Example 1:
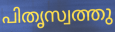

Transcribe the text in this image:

പിതൃസ്വത്തു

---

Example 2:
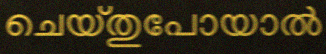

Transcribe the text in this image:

ചെയ്തുപോയാൽ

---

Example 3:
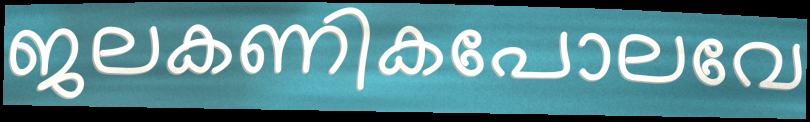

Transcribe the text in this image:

ജലകണികപോലവേ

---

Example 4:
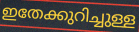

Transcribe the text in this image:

ഇതേക്കുറിച്ചുള്ള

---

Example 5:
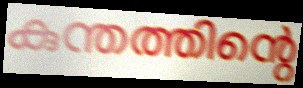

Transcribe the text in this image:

കുന്തത്തിന്റെ